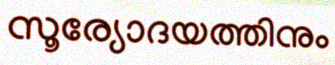
സൂര്യോദയത്തിനും